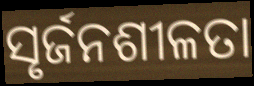
ସୃର୍ଜନଶୀଳତା